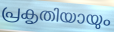
പ്രകൃതിയായും